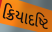
ક્રિયાદષ્ટિ